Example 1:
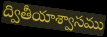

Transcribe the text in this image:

ద్వితీయాశ్వాసము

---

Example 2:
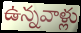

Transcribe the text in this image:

ఉన్నవాళ్లు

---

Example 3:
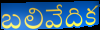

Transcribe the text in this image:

బలివేదిక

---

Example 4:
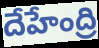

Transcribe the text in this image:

దేహేంద్రి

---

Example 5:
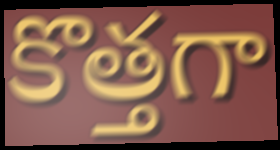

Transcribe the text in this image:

కొత్తగా